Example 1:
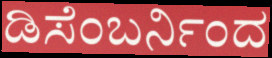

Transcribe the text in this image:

ಡಿಸೆಂಬರ್ನಿಂದ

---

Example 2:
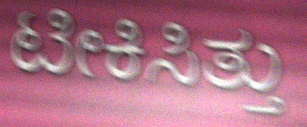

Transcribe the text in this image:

ಟೀಕಿಸಿತ್ತು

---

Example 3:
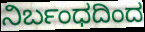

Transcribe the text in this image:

ನಿರ್ಬಂಧದಿಂದ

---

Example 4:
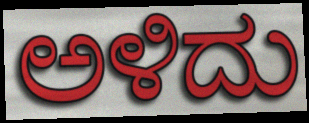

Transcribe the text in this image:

ಅಳಿದು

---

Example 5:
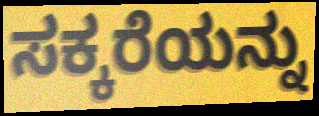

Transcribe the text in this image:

ಸಕ್ಕರೆಯನ್ನು